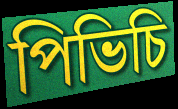
পিভিচি